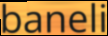
baneli